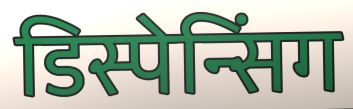
डिस्पेन्सिंग